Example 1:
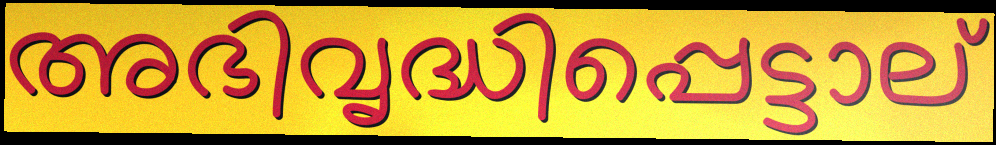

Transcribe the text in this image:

അഭിവൃദ്ധിപ്പെട്ടാല്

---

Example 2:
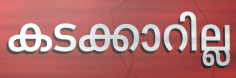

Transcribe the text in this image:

കടക്കാറില്ല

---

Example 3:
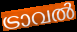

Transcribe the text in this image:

ട്രാവൽ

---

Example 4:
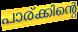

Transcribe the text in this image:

പാര്ക്കിന്റെ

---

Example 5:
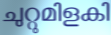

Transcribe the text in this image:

ചുറ്റുമിളകി